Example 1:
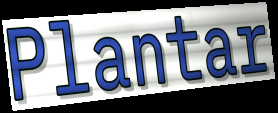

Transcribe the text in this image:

Plantar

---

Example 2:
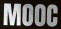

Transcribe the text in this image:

MOOC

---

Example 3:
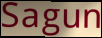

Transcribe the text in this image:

Sagun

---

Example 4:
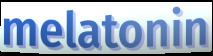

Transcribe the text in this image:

melatonin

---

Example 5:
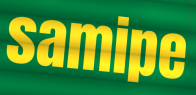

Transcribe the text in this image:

samipe